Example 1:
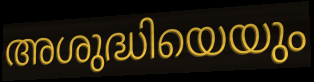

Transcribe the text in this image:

അശുദ്ധിയെയും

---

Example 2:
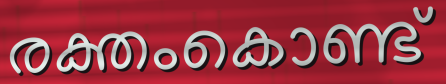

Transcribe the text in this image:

രക്തംകൊണ്ട്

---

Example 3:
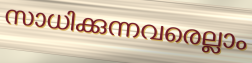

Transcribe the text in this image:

സാധിക്കുന്നവരെല്ലാം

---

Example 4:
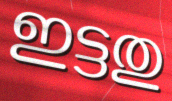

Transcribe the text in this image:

ഇട്ടതു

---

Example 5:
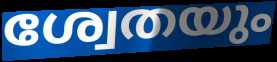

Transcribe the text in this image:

ശ്വേതയും